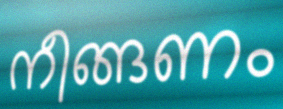
നീങ്ങണം